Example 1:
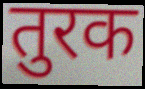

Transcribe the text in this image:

तुरक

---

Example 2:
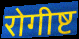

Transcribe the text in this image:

रोगीष्ट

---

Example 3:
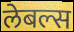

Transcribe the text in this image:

लेबल्स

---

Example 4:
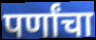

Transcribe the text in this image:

पर्णांचा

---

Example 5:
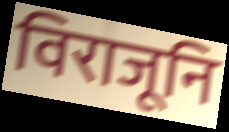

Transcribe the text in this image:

विराजूनि